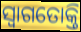
ସ୍ଵାଗତୋକ୍ତି